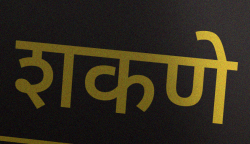
शकणे